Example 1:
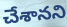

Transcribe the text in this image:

చేశానని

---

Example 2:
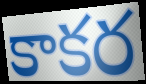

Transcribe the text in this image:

కాకర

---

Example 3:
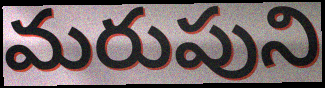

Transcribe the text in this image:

మరుపుని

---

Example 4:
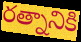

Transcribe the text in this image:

రత్నానికి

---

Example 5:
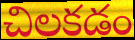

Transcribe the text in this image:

చిలకడం